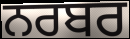
ਨਰਬਰ